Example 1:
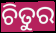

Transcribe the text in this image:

ଚିତୁର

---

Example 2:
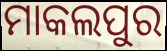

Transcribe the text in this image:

ମାକଲପୁର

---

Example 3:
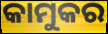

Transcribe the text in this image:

କାମୁକର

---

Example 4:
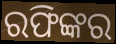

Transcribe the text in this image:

ରଫିଙ୍କର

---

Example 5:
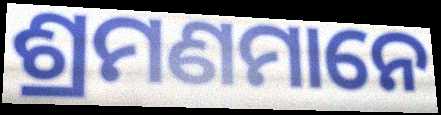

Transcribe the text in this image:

ଶ୍ରମଣମାନେ